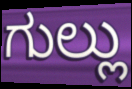
ಗುಲ್ಲು